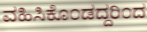
ವಹಿಸಿಕೊಂಡದ್ದರಿಂದ